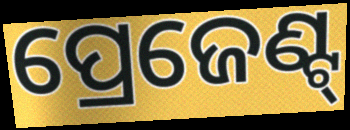
ପ୍ରେଜେଣ୍ଟ୍